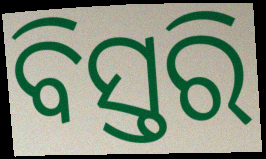
ବିସ୍ତରି